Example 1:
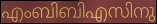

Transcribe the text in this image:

എംബിബിഎസിനു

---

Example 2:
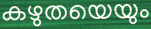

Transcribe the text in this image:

കഴുതയെയും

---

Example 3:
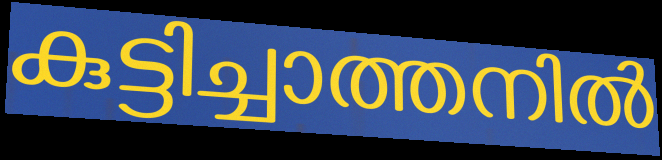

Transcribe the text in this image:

കുട്ടിച്ചാത്തനിൽ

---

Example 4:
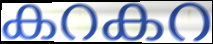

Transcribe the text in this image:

കറകറ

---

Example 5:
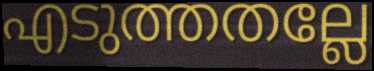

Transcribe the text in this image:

എടുത്തതല്ലേ